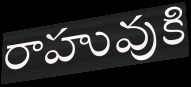
రాహువుకి